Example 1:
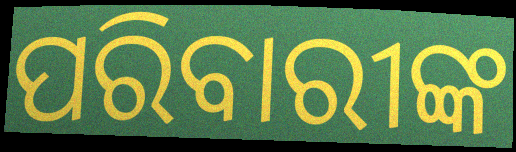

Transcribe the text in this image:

ପରିବାରୀଙ୍କ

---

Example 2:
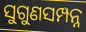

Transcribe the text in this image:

ସୁଗୁଣସମ୍ପନ୍ନ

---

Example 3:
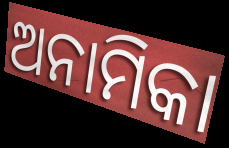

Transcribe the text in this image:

ଅନାମିକା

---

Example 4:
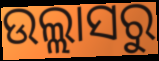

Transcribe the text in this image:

ଉଲ୍ଲାସରୁ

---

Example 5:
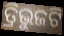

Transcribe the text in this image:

ତ୍ରିଭୁଜଟି